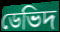
ডেভিদ